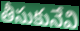
తీసుకునేవి